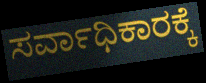
ಸರ್ವಾಧಿಕಾರಕ್ಕೆ